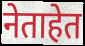
नेताहेत